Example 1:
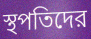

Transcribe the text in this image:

স্থপতিদের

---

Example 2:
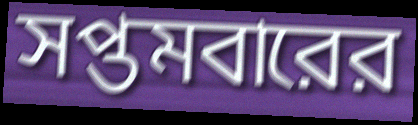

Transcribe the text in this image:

সপ্তমবারের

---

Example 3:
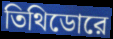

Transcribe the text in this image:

তিথিডোরে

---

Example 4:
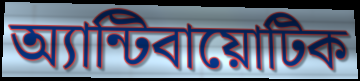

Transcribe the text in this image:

অ্যান্টিবায়োটিক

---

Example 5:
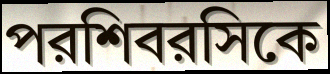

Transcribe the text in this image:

পরশিবরসিকে